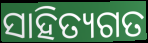
ସାହିତ୍ୟଗତ